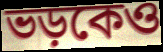
ভড়কেও